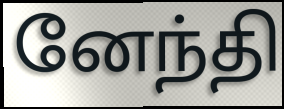
னேந்தி